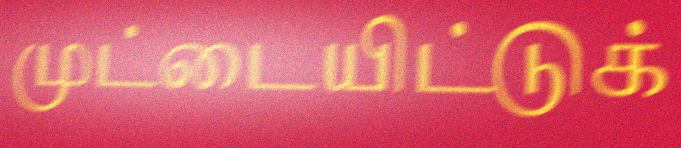
முட்டையிட்டுக்